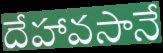
దేహావసానే